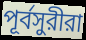
পূর্বসুরীরা